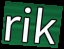
rik